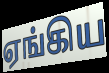
ஏங்கிய